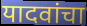
यादवांचा